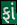
ફાં